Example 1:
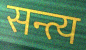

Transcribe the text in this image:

सन्त्य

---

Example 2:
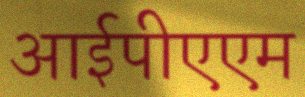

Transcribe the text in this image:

आईपीएएम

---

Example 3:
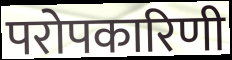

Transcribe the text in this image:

परोपकारिणी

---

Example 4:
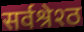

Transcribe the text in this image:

सर्वश्रेश्ठ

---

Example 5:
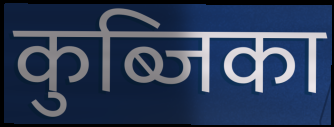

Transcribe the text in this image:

कुब्जिका